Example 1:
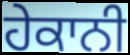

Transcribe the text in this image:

ਹੇਕਾਨੀ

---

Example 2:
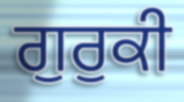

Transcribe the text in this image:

ਗੁਰੁਕੀ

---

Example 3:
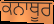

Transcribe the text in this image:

ਕਨਾਥੂਰ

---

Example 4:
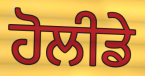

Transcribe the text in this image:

ਹੋਲੀਡੇ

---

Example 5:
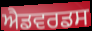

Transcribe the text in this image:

ਐਡਵਰਡਸ